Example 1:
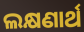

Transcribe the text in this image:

ଲକ୍ଷଣାର୍ଥ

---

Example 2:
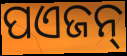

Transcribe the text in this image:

ପଏଜନ୍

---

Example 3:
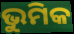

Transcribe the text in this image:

ଭୁମିକ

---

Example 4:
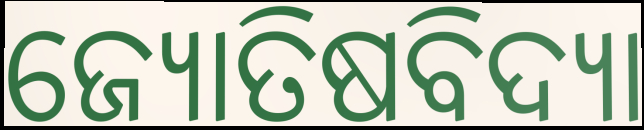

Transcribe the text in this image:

ଜ୍ୟୋତିଷବିଦ୍ୟା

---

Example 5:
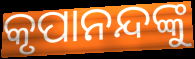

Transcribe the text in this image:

କୃପାନନ୍ଦଙ୍କୁ